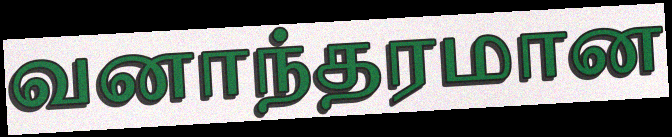
வனாந்தரமான